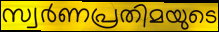
സ്വർണപ്രതിമയുടെ